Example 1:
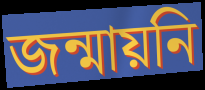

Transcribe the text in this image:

জন্মায়নি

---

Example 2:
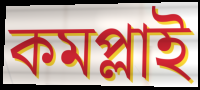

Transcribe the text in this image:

কমপ্লাই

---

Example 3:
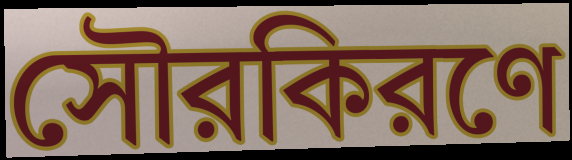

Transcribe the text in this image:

সৌরকিরণে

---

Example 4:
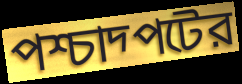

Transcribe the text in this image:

পশ্চাদ্পটের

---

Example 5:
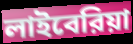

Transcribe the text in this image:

লাইবেরিয়া